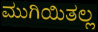
ಮುಗಿಯಿತಲ್ಲ